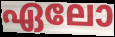
ഏലോ